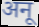
अनू